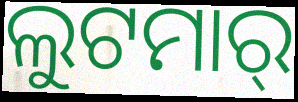
ଲୁଟମାର୍